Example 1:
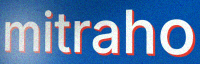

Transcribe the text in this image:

mitraho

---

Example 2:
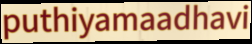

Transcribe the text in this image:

puthiyamaadhavi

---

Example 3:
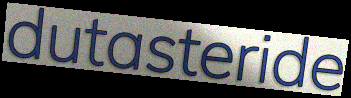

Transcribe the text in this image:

dutasteride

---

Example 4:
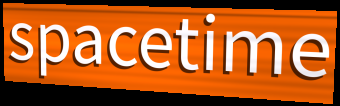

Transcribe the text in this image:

spacetime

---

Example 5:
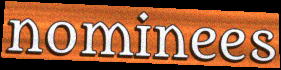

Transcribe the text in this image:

nominees